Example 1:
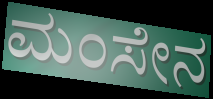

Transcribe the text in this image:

ಮಂಸೇನ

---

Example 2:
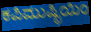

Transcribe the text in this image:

ಕಪಿಮುಷ್ಟಿಯಿಂ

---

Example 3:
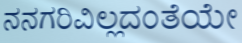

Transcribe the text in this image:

ನನಗರಿವಿಲ್ಲದಂತೆಯೇ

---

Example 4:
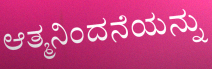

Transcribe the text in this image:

ಆತ್ಮನಿಂದನೆಯನ್ನು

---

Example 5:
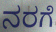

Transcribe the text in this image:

ನರಗೆ